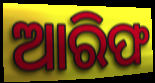
ଆରିଫ